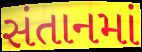
સંતાનમાં